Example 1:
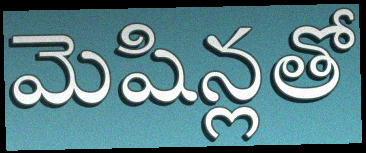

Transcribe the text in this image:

మెషిన్లతో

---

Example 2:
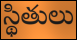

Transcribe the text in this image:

స్థితులు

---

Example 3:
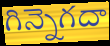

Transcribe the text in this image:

గిన్నెగదా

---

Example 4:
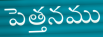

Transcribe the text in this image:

పెత్తనము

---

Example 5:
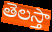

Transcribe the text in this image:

తెలస్తా